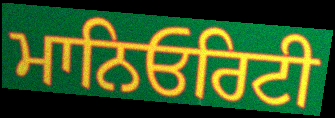
ਮਾਨਿਓਰਿਟੀ